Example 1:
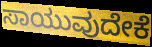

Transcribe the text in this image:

ಸಾಯುವುದೇಕೆ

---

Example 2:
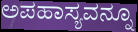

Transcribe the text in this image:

ಅಪಹಾಸ್ಯವನ್ನೂ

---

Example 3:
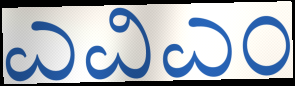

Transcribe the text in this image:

ಎವಿಎಂ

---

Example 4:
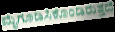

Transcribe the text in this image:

ಮೈಗೂಡಿಸಿಕೊಂಡಿರುತ್ತದೆ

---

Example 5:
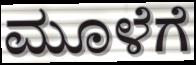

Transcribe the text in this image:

ಮೂಳೆಗೆ